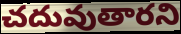
చదువుతారని